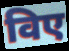
विए